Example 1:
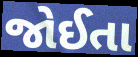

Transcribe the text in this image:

જોઈતા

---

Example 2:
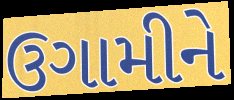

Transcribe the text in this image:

ઉગામીને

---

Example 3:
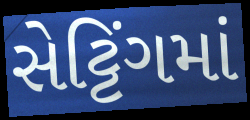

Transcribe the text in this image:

સેટ્ટિંગમાં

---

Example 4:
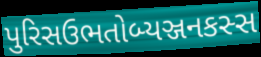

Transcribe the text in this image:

પુરિસઉભતોબ્યઞ્જનકસ્સ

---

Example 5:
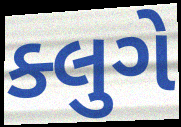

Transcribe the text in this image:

ક્લુગે